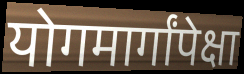
योगमार्गांपेक्षा